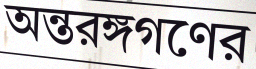
অন্তরঙ্গগণের